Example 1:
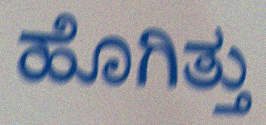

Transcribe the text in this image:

ಹೊಗಿತ್ತು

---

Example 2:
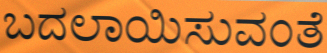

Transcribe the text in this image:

ಬದಲಾಯಿಸುವಂತೆ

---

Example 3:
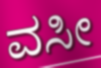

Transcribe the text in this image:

ವಸೀ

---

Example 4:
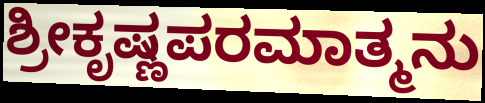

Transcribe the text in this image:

ಶ್ರೀಕೃಷ್ಣಪರಮಾತ್ಮನು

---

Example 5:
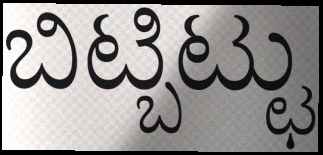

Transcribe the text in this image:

ಬಿಟ್ಬಿಟ್ಟು